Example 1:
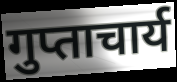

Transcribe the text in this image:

गुप्ताचार्य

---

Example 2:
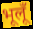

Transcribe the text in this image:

भूलूँ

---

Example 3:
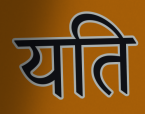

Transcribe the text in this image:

यति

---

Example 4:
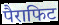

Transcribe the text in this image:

पैराफिट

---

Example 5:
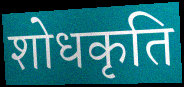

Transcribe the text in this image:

शोधकृति